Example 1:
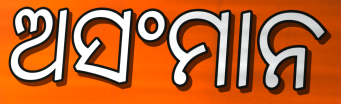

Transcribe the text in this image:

ଅସଂମାନ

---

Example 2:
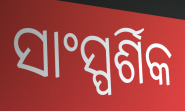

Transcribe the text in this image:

ସାଂସ୍ପର୍ଶିକ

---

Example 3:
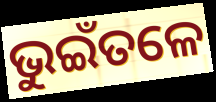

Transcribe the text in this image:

ଭୁଇଁତଳେ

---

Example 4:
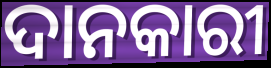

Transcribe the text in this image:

ଦାନକାରୀ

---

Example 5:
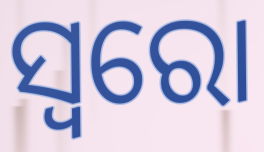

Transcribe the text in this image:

ସ୍ୱରୋ